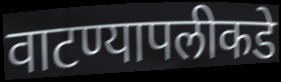
वाटण्यापलीकडे